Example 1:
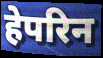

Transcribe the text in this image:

हेपरिन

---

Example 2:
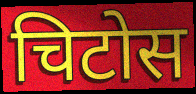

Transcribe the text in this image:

चिटोस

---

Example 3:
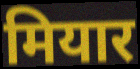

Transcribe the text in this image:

मियार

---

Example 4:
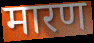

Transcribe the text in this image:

मारण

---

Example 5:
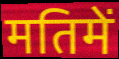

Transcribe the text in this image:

मतिमें